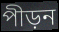
পীড়ন